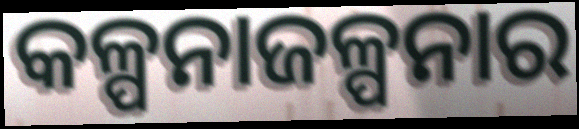
କଳ୍ପନାଜଳ୍ପନାର